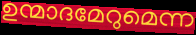
ഉന്മാദമേറുമെന്ന